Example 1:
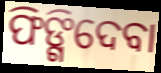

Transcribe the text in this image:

ଫିଙ୍ଗିଦେବା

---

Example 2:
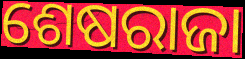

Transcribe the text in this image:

ଶେଷରାଜା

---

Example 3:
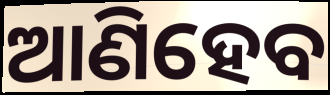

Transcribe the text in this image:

ଆଣିହେବ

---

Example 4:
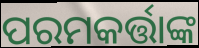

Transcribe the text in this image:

ପରମକର୍ତ୍ତାଙ୍କ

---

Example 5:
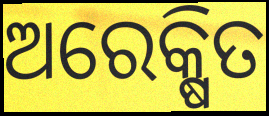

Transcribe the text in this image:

ଅରେକ୍ଷିତ